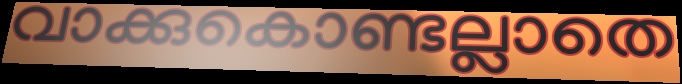
വാക്കുകൊണ്ടല്ലാതെ